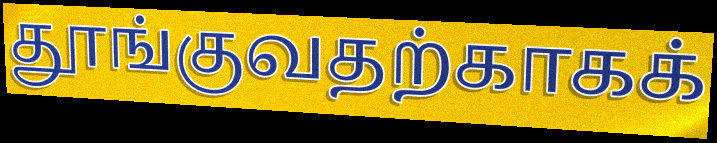
தூங்குவதற்காகக்